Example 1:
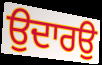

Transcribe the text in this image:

ਉਦਾਰਉ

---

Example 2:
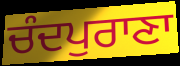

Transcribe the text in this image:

ਚੰਦਪੁਰਾਣਾ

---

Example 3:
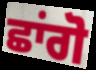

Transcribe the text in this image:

ਛਾਂਗੋ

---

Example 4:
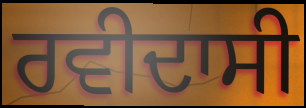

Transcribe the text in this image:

ਰਵੀਦਾਸੀ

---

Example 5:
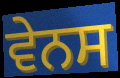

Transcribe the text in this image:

ਵੇਨਸ